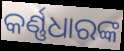
କର୍ଣ୍ଣଧାରଙ୍କ